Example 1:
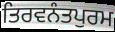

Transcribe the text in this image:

ਤਿਰਵਨੰਤਪੁਰਮ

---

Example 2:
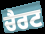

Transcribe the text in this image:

ਚੈਰਟ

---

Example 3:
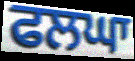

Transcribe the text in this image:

ਫਲਘਾ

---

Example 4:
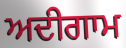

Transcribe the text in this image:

ਅਦੀਗਾਮ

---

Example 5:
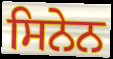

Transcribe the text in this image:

ਸਿਨੇਨ